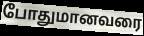
போதுமானவரை